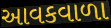
આવકવાળા